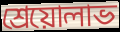
শ্রেয়োলাভ